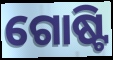
ଗୋଷ୍ଟି